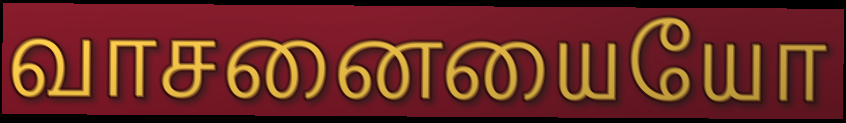
வாசனையையோ